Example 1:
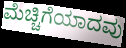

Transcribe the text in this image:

ಮೆಚ್ಚಿಗೆಯಾದವು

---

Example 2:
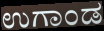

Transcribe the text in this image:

ಉಗಾಂಡ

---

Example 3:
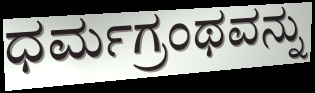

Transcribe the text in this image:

ಧರ್ಮಗ್ರಂಥವನ್ನು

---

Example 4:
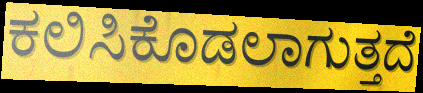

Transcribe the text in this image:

ಕಲಿಸಿಕೊಡಲಾಗುತ್ತದೆ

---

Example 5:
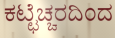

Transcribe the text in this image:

ಕಟ್ಟೆಚ್ಚರದಿಂದ